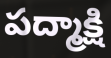
పద్మాక్షి